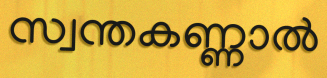
സ്വന്തകണ്ണാൽ